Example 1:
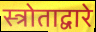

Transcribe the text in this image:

स्त्रोताद्वारे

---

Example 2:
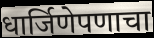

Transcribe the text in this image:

धार्जिणेपणाचा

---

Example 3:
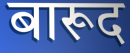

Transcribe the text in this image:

बारूद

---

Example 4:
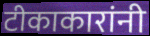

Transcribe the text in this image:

टीकाकारांनी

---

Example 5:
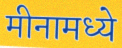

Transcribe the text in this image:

मीनामध्ये